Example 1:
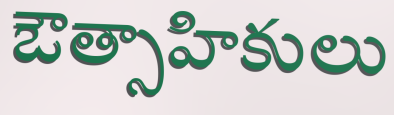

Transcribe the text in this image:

ఔత్సాహికులు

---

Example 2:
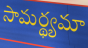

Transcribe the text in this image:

సామర్థ్యమా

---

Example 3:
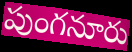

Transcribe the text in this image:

పుంగనూరు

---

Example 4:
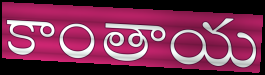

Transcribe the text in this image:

కాంతాయ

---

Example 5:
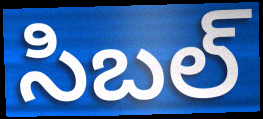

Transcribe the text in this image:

సిబల్